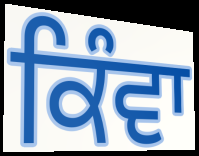
ਕਿੰਵਾ